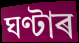
ঘণ্টাৰ